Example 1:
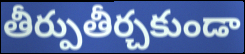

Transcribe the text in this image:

తీర్పుతీర్చకుండా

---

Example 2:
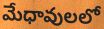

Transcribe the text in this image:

మేధావులలో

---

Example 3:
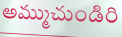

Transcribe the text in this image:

అమ్ముచుండిరి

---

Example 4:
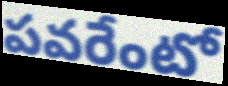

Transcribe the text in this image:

పవరేంటో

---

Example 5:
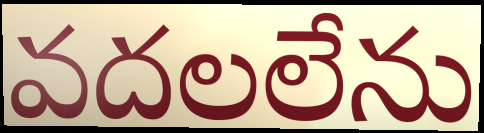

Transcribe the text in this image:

వదలలేను